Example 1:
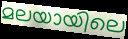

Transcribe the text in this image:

മലയായിലെ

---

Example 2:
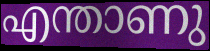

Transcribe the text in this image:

എന്താണു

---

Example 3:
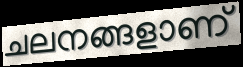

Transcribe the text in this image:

ചലനങ്ങളാണ്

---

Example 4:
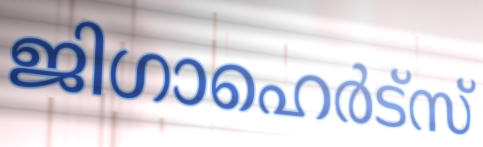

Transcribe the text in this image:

ജിഗാഹെർട്സ്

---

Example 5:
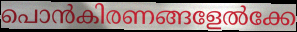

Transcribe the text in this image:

പൊൻകിരണങ്ങളേൽക്കേ